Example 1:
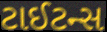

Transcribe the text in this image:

ટાઈટન્સ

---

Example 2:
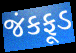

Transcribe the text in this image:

જંકફૂડ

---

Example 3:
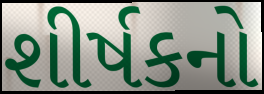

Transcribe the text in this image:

શીર્ષકનો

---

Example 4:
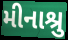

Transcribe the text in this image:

મીનાશ્રુ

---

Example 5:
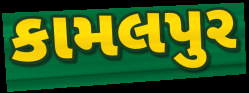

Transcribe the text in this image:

કામલપુર